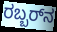
ರಬ್ಬರ್‌ನ